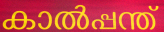
കാൽപ്പന്ത്